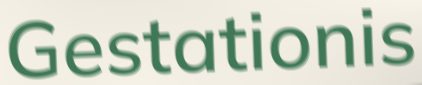
Gestationis